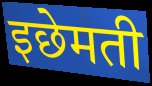
इछेमती